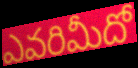
ఎవరిమీదో